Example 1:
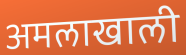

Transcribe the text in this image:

अमलाखाली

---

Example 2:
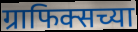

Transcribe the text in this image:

ग्राफिक्सच्या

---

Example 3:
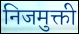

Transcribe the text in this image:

निजमुक्ती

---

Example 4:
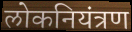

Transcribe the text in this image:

लोकनियंत्रण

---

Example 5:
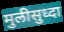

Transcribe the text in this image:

मुलीसुध्दा